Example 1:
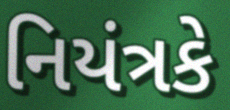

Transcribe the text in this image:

નિયંત્રકે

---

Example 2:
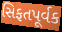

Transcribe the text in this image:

સિફતપૂર્વક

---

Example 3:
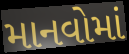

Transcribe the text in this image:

માનવોમાં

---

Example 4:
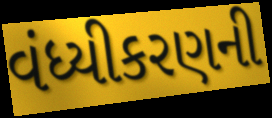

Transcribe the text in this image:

વંધ્યીકરણની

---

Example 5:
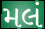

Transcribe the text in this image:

મલં